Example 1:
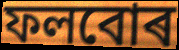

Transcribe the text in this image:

ফলবোৰ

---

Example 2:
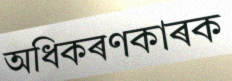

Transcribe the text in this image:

অধিকৰণকাৰক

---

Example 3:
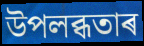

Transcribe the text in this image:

উপলব্ধতাৰ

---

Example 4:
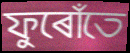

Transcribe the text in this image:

ফুৰোঁতে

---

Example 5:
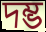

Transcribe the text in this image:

দম্ভ